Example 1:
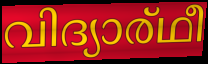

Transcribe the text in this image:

വിദ്യാര്ഥീ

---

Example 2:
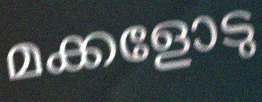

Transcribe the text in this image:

മക്കളോടു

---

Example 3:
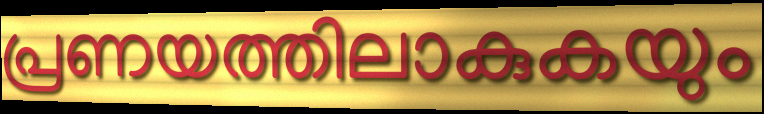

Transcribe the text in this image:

പ്രണയത്തിലാകുകയും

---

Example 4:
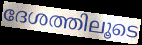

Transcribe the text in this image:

ദേശത്തിലൂടെ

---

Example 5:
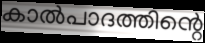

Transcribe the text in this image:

കാൽപാദത്തിന്റെ